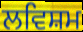
ਲਵਿਸ਼ਮ